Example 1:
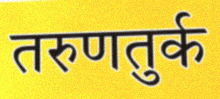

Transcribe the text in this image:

तरुणतुर्क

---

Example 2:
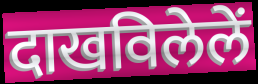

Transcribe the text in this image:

दाखविलेलें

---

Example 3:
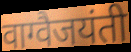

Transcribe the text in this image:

वाग्वैजयंती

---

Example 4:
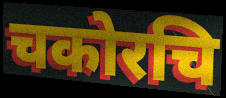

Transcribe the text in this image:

चकोरचि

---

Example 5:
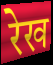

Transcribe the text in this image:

रेख